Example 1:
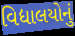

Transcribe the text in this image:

વિદ્યાલયોનું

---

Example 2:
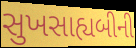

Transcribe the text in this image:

સુખસાહ્યબીની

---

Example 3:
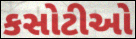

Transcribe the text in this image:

કસોટીઓ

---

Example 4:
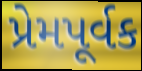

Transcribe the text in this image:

પ્રેમપૂર્વક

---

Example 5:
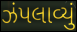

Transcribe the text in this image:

ઝંપલાવ્યું